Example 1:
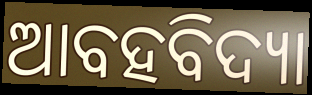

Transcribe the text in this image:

ଆବହବିଦ୍ୟା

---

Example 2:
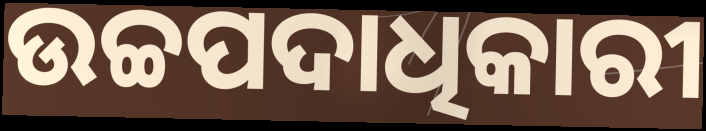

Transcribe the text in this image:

ଉଚ୍ଚପଦାଧିକାରୀ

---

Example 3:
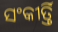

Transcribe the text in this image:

ସଂକୀର୍ତ୍ତି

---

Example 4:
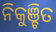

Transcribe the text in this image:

ନିକୁଞ୍ଚିତ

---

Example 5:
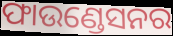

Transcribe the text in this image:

ଫାଉଣ୍ଡେସନର